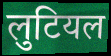
लुटियल